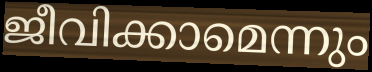
ജീവിക്കാമെന്നും